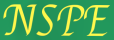
NSPE